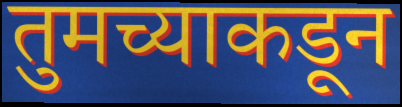
तुमच्याकडून